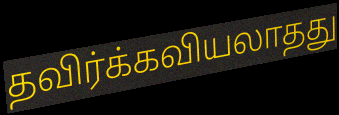
தவிர்க்கவியலாதது